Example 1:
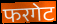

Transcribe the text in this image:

फरगेट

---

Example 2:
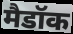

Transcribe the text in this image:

मैडॉक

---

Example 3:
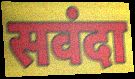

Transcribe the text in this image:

सवंदा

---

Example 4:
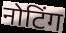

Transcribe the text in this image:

नोटिंग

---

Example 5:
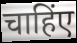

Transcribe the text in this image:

चाहिंए